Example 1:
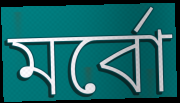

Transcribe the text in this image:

মর্বো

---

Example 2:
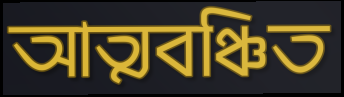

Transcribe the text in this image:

আত্মবঞ্চিত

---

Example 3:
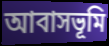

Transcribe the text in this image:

আবাসভূমি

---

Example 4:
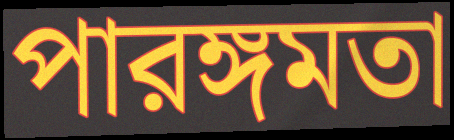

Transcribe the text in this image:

পারঙ্গমতা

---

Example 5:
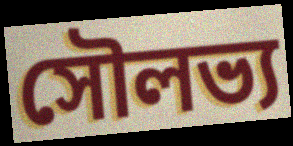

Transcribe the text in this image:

সৌলভ্য